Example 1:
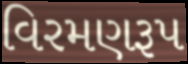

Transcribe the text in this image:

વિરમણરૂપ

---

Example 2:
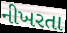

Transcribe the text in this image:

નીખરતા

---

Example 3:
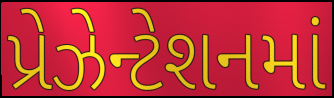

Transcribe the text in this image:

પ્રેઝેન્ટેશનમાં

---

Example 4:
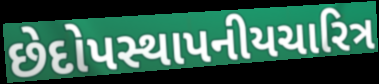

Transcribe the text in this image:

છેદોપસ્થાપનીયચારિત્ર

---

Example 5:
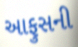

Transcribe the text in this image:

આફુસની